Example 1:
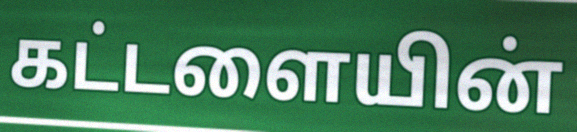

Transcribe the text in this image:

கட்டளையின்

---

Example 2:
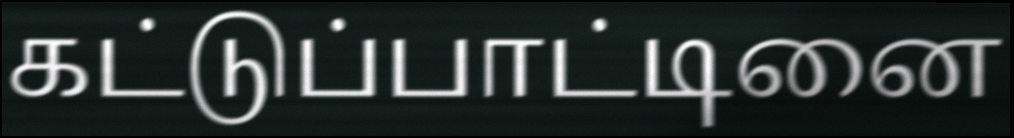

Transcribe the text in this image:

கட்டுப்பாட்டினை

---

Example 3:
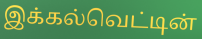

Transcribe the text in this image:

இக்கல்வெட்டின்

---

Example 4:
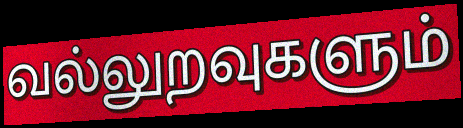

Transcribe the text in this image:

வல்லுறவுகளும்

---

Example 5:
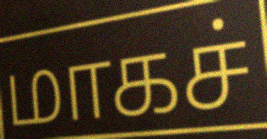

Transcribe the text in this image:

மாகச்